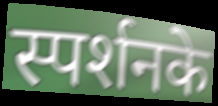
स्पर्शनके